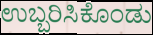
ಉಬ್ಬರಿಸಿಕೊಂಡು